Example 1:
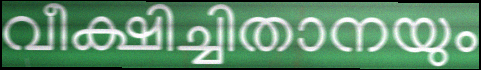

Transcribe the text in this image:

വീക്ഷിച്ചിതാനയും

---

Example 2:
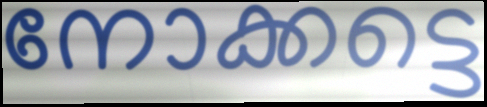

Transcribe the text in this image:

നോക്കട്ടെ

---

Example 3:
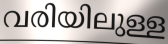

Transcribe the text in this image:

വരിയിലുള്ള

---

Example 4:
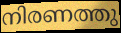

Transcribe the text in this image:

നിരണത്തു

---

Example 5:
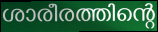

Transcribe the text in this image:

ശാരീരത്തിന്റെ